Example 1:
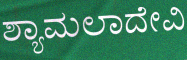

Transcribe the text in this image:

ಶ್ಯಾಮಲಾದೇವಿ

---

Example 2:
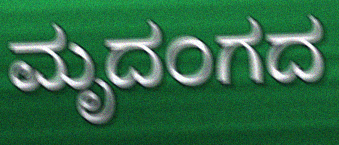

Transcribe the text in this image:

ಮೃದಂಗದ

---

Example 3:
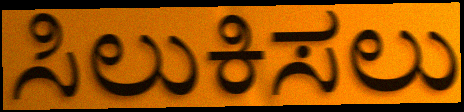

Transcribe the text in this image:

ಸಿಲುಕಿಸಲು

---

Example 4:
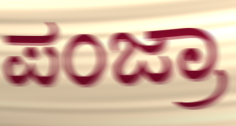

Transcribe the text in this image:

ಪಂಜ್ರಾ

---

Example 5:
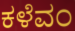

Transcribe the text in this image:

ಕಳೆವಂ